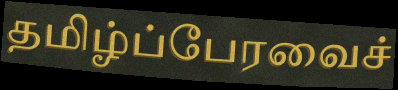
தமிழ்ப்பேரவைச்